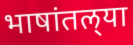
भाषांतल्या